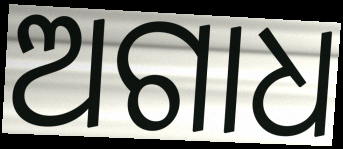
ଅଗାଧ